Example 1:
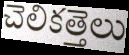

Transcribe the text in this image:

చెలికత్తెలు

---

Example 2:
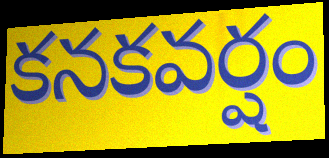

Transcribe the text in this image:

కనకవర్షం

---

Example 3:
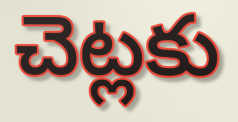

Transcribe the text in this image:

చెట్లకు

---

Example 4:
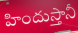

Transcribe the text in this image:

హిందుస్తానీ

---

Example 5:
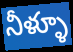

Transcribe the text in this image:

నీళ్ళూ